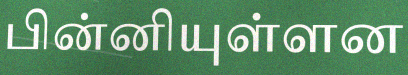
பின்னியுள்ளன